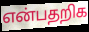
என்பதறிக